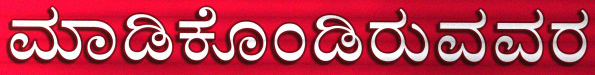
ಮಾಡಿಕೊಂಡಿರುವವರ